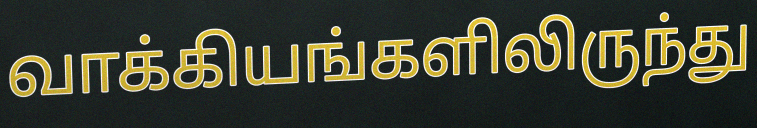
வாக்கியங்களிலிருந்து